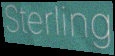
Sterling